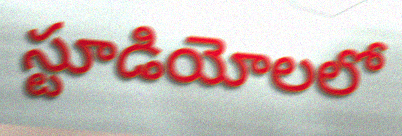
స్టూడియోలలో